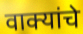
वाक्यांचे